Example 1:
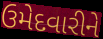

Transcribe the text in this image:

ઉમેદવારીને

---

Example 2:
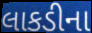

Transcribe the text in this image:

લાકડીના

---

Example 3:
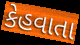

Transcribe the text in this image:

કેહવાતા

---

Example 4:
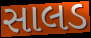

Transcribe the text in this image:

સાલડ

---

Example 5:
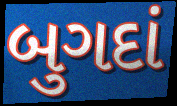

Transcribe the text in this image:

બુગદાં